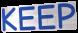
KEEP